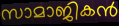
സാമാജികൻ